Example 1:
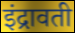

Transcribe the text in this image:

इंद्रावती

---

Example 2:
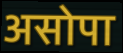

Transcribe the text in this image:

असोपा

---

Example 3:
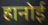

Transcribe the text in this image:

हानोई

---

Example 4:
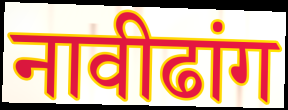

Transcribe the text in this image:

नावीढांग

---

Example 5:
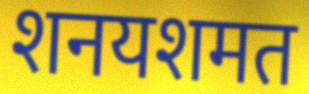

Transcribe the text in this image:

शनयशमत